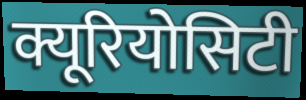
क्यूरियोसिटी